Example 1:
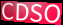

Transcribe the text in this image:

CDSO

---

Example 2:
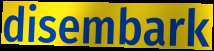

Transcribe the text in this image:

disembark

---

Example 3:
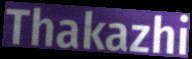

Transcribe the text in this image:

Thakazhi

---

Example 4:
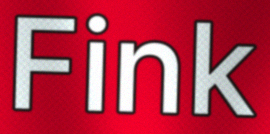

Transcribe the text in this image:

Fink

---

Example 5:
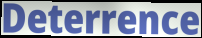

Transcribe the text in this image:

Deterrence